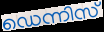
ഡെന്നിസ്